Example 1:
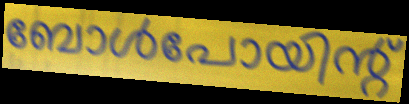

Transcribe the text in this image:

ബോൾപോയിന്റ്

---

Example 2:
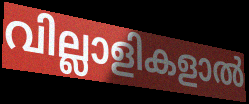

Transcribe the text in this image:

വില്ലാളികളാൽ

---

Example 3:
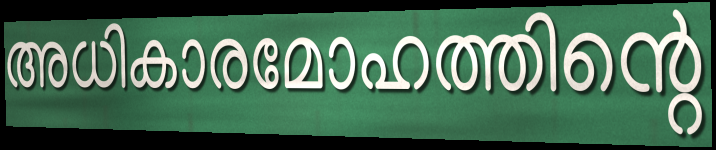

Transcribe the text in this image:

അധികാരമോഹത്തിന്റെ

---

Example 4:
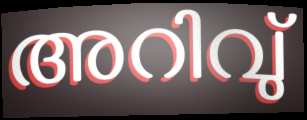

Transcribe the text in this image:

അറിവു്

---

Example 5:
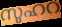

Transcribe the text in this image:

സുഹറ